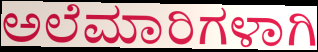
ಅಲೆಮಾರಿಗಳಾಗಿ